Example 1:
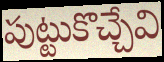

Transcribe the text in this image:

పుట్టుకొచ్చేవి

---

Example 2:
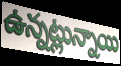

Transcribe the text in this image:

ఉన్నట్లున్నాయి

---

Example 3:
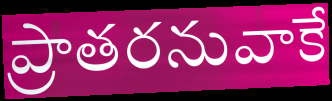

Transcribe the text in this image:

ప్రాతరనువాకే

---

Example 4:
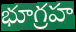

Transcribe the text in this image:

భూగ్రహ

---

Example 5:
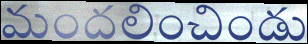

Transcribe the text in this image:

మందలించిండు